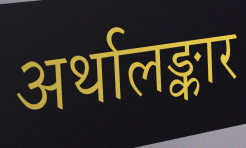
अर्थालङ्कार